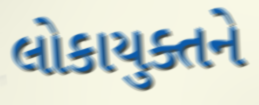
લોકાયુક્તને